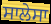
ਸਾਲੇਸਾ